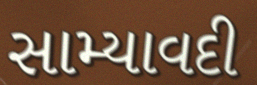
સામ્યાવદી